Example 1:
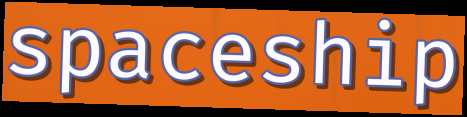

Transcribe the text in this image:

spaceship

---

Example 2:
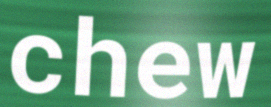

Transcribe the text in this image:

chew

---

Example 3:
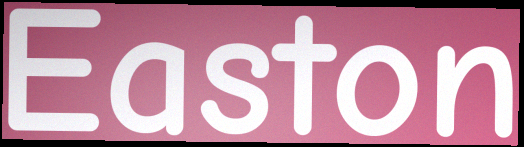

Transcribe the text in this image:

Easton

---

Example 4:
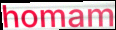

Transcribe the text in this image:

homam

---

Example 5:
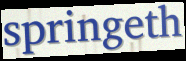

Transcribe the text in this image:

springeth